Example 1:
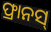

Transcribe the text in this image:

ଫ୍ରାନସ୍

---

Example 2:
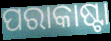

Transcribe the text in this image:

ପରାକାଷ୍ଟା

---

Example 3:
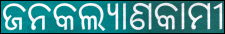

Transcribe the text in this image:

ଜନକଲ୍ୟାଣକାମୀ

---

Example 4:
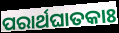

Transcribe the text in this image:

ପରାର୍ଥଘାତକାଃ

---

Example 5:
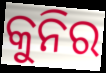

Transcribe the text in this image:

କୁନିର